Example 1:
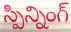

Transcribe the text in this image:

స్పిన్నింగ్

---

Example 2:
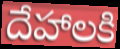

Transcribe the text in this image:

దేహాలకి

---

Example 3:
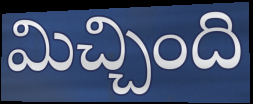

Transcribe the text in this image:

మిచ్చింది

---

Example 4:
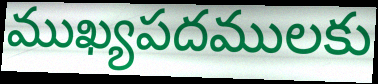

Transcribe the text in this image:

ముఖ్యపదములకు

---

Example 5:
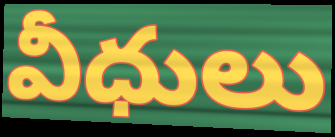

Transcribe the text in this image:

వీధులు